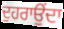
ਦੁਹਰਾਉਂਦਾ